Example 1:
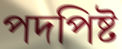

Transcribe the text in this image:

পদপিষ্ট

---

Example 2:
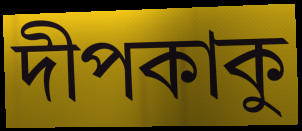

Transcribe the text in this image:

দীপকাকু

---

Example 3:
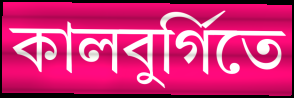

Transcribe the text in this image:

কালবুর্গিতে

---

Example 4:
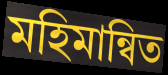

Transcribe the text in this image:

মহিমান্বিত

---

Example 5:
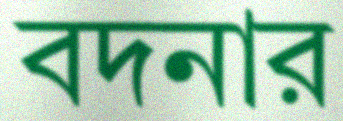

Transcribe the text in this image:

বদনার